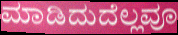
ಮಾಡಿದುದೆಲ್ಲವೂ